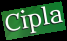
Cipla